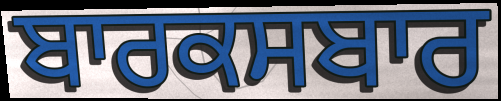
ਬਾਰਕਸਬਾਰ